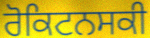
ਰੋਕਿਟਨਸਕੀ